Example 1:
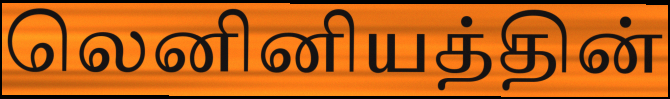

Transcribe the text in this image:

லெனினியத்தின்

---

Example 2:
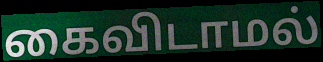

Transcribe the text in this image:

கைவிடாமல்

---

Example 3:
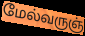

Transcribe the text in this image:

மேல்வருஞ்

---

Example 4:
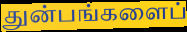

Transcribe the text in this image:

துன்பங்களைப்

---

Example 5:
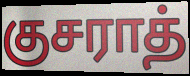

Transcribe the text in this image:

குசராத்